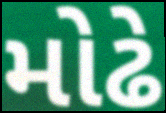
મોઢે